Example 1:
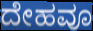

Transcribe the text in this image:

ದೇಹವೂ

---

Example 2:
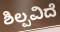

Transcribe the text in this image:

ಶಿಲ್ಪವಿದೆ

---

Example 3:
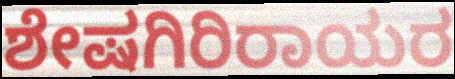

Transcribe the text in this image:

ಶೇಷಗಿರಿರಾಯರ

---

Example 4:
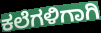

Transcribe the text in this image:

ಕಲೆಗಳಿಗಾಗಿ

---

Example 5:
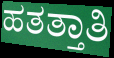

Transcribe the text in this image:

ಹತತ್ತಾತಿ